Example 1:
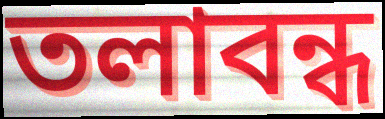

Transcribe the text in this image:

তলাবন্ধ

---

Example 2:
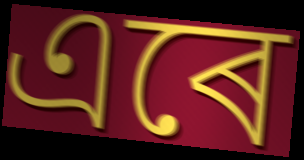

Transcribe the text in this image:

এৰে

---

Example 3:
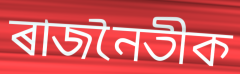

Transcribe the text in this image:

ৰাজনৈতীক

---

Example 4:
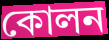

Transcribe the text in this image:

কোলন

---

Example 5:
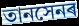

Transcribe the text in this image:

তানসেনৰ